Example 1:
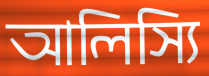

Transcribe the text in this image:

আলিস্যি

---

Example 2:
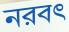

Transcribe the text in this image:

নরবৎ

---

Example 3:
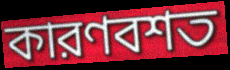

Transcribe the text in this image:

কারণবশত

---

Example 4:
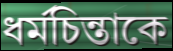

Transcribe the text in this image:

ধর্মচিন্তাকে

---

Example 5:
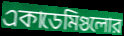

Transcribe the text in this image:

একাডেমিগুলোর